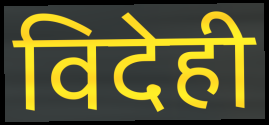
विदेही